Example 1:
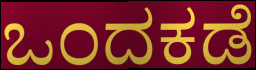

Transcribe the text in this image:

ಒಂದಕಡೆ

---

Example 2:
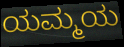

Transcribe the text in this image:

ಯಮ್ಮಯ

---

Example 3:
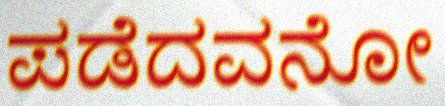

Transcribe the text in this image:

ಪಡೆದವನೋ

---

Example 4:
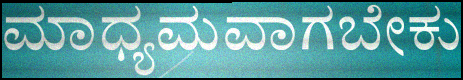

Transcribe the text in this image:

ಮಾಧ್ಯಮವಾಗಬೇಕು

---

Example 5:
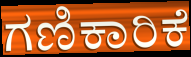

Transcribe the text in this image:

ಗಣಿಕಾರಿಕೆ